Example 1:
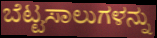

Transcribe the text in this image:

ಬೆಟ್ಟಸಾಲುಗಳನ್ನು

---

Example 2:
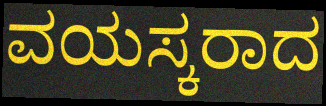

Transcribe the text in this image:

ವಯಸ್ಕರಾದ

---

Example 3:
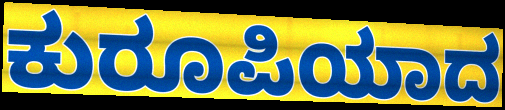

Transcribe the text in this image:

ಕುರೂಪಿಯಾದ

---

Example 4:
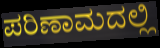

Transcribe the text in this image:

ಪರಿಣಾಮದಲ್ಲಿ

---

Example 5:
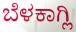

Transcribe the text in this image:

ಬೆಳಕಾಗ್ಲಿ